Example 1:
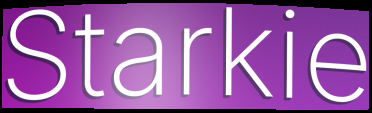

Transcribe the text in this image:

Starkie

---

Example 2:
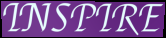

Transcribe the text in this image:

INSPIRE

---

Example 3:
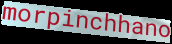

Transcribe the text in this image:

morpinchhano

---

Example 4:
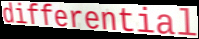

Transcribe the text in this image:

differential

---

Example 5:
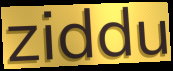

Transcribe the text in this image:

ziddu